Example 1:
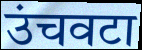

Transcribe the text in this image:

उंचवटा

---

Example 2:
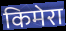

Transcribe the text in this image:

किमेरा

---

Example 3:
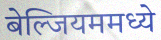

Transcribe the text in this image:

बेल्जियममध्ये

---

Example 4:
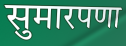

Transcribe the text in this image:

सुमारपणा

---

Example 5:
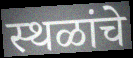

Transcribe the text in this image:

स्थळांचे